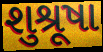
શુશ્રૂષા